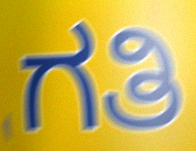
ಗತಿ